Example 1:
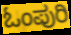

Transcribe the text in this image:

ಓಂಪುರಿ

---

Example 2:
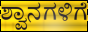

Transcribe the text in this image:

ಶ್ವಾನಗಳಿಗೆ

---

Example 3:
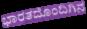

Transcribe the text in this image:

ಭಾರತದೊಂದಿಗಿನ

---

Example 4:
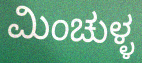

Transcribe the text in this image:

ಮಿಂಚುಳ್ಳ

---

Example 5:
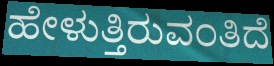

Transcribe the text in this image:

ಹೇಳುತ್ತಿರುವಂತಿದೆ